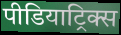
पीडियाट्रिक्स